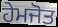
ਹੇਮਜੋਤ